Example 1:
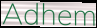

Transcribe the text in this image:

Adhem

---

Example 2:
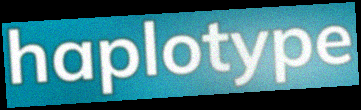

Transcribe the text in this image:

haplotype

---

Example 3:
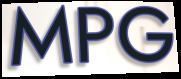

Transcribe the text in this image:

MPG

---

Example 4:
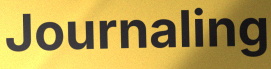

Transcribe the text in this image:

Journaling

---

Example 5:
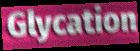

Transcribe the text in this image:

Glycation